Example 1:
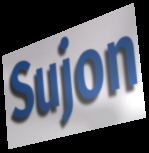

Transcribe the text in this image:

Sujon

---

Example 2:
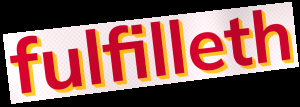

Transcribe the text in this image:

fulfilleth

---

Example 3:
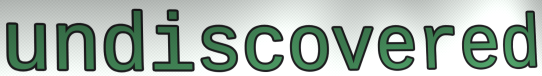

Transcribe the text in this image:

undiscovered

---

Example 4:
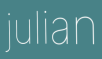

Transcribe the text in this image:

julian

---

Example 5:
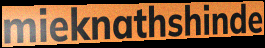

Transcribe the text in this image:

mieknathshinde